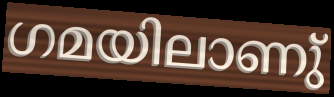
ഗമയിലാണു്